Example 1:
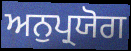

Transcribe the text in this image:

ਅਨੁਪ੍ਰਯੋਗ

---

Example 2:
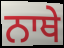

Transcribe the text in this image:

ਨਾਥੇ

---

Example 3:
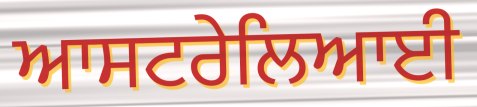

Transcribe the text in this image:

ਆਸਟਰੇਲਿਆਈ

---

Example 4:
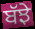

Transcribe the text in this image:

ਬੱਝੇ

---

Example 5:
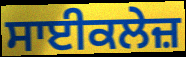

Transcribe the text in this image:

ਸਾਈਕਲੇਜ਼